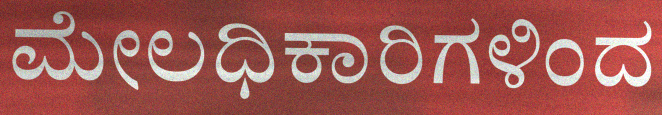
ಮೇಲಧಿಕಾರಿಗಳಿಂದ